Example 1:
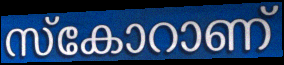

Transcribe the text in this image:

സ്‌കോറാണ്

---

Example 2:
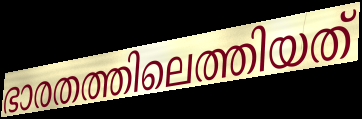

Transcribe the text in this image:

ഭാരതത്തിലെത്തിയത്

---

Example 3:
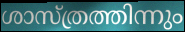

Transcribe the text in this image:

ശാസ്ത്രത്തിന്നും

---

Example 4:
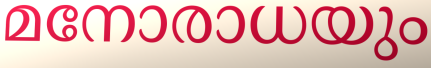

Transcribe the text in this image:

മനോരാധയും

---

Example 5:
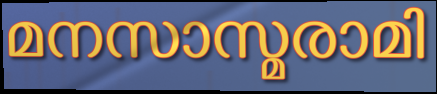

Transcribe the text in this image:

മനസാസ്മരാമി